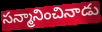
సన్మానించినాడు